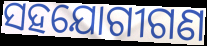
ସହଯୋଗୀଗଣ